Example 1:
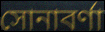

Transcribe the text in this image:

সোনাবর্ণা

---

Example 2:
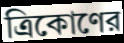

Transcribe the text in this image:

ত্রিকোণের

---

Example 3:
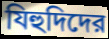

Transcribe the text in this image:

যিহুদিদের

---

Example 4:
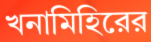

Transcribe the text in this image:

খনামিহিরের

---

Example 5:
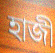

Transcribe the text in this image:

হাজী